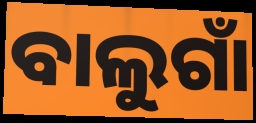
ବାଲୁଗାଁ